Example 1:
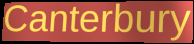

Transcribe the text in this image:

Canterbury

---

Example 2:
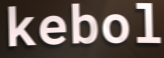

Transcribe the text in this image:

kebol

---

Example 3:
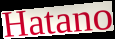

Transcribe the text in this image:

Hatano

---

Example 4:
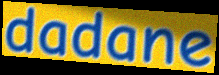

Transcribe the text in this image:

dadane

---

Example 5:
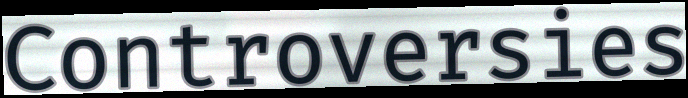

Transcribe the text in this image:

Controversies